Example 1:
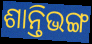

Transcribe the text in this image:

ଶାନ୍ତିଭଙ୍ଗ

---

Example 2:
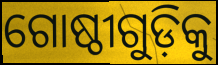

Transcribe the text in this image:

ଗୋଷ୍ଠୀଗୁଡ଼ିକୁ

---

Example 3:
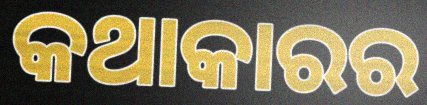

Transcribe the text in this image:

କଥାକାରର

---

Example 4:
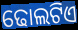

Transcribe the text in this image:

ଢୋଲଟିଏ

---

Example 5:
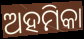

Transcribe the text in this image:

ଅହମିକା